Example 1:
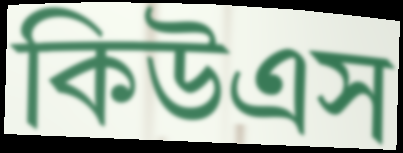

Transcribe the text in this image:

কিউএস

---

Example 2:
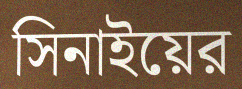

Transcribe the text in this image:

সিনাইয়ের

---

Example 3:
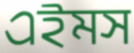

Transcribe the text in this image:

এইমস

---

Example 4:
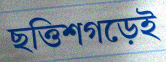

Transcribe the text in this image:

ছত্তিশগড়েই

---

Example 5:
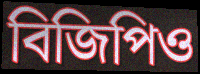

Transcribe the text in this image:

বিজিপিও